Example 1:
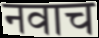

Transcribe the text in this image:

नवाच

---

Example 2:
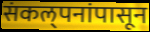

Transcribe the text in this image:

संकल्पनांपासून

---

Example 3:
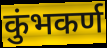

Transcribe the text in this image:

कुंभकर्ण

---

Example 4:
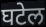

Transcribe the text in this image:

घटेल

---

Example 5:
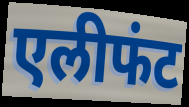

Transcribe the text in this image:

एलीफंट